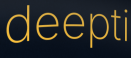
deepti